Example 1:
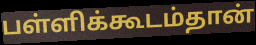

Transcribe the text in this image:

பள்ளிக்கூடம்தான்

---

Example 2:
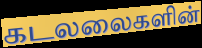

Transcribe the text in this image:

கடலலைகளின்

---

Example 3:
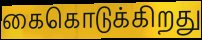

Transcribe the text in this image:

கைகொடுக்கிறது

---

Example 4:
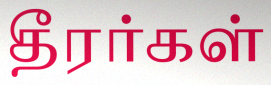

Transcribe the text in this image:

தீரர்கள்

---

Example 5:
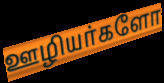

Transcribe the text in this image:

ஊழியர்களோ